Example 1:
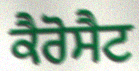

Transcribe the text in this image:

ਕੈਰੋਸੈਟ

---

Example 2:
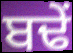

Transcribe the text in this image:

ਬਢੇਂ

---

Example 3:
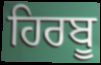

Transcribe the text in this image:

ਹਿਰਬੂ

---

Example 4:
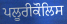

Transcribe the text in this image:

ਪਲੂਰੀਕੌਲਿਸ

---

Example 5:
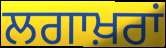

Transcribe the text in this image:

ਲਗਾਖ਼ਰਾਂ